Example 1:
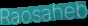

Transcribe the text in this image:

Raosaheb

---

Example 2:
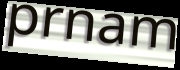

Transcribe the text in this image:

prnam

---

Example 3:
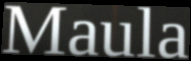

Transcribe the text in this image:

Maula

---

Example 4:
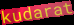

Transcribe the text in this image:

kudarat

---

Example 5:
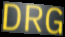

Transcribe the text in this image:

DRG